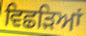
ਵਿਛੜਿਆਂ